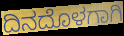
ದಿನದೊಳಗಾಗಿ